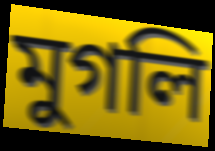
মুগলি